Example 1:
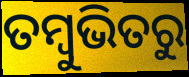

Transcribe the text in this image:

ତମ୍ବୁଭିତରୁ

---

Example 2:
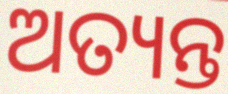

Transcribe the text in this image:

ଅତ୍ୟନ୍ତ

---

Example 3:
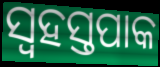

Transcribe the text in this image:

ସ୍ୱହସ୍ତପାକ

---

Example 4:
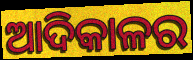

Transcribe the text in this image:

ଆଦିକାଳର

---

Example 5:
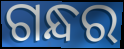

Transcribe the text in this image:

ଗନ୍ଧର